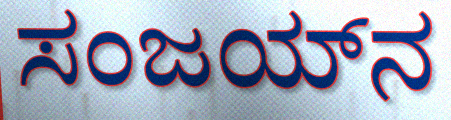
ಸಂಜಯ್‌ನ